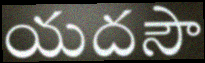
యదసౌ